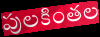
పులకింతల